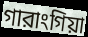
গারাংগিয়া